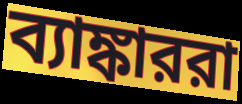
ব্যাঙ্কাররা